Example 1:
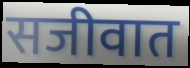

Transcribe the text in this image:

सजीवात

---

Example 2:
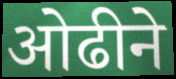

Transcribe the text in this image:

ओढीने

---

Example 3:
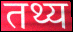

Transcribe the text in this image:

तथ्य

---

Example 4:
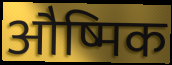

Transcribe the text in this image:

औष्मिक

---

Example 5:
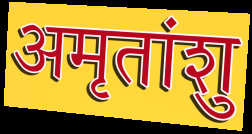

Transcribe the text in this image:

अमृतांशु